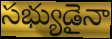
సభ్యుడైనా